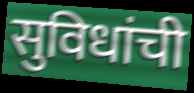
सुविधांची